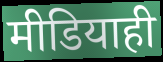
मीडियाही